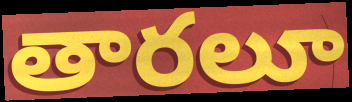
తారలూ